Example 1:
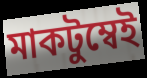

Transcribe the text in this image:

মাকটুম্বেই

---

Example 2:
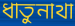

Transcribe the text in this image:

ধাতুনাথা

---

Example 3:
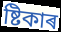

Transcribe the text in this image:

ষ্টিকাৰ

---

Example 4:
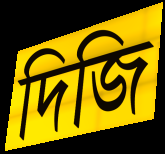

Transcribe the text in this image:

দিজি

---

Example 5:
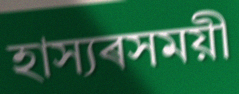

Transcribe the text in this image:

হাস্যৰসময়ী